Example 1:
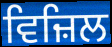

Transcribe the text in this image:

ਵਿਜ਼ਿਲ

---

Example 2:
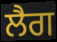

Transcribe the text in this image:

ਲੈਗ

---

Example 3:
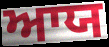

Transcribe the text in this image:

ਆਯ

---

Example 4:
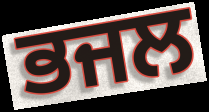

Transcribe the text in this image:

ਭਜਲ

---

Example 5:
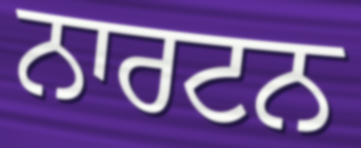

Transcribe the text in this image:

ਨਾਰਟਨ